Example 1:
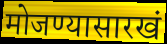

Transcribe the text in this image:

मोजण्यासारखं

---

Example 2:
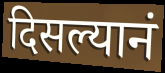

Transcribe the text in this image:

दिसल्यानं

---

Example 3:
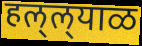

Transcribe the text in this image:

हल्ल्याळ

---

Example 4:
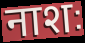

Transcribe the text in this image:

नाशः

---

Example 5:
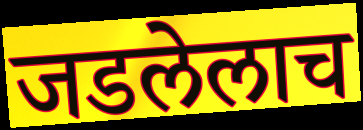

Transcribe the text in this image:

जडलेलाच